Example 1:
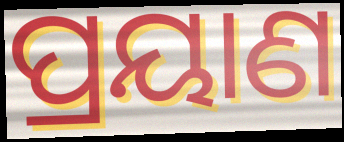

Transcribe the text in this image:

ପ୍ରୟାଣ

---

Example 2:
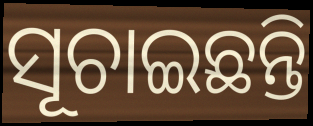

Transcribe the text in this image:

ସୂଚାଇଛନ୍ତି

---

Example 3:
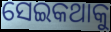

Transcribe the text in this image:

ସେଇକଥାକୁ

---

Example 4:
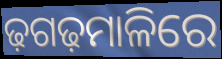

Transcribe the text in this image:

ଢ଼ଗଢ଼ମାଳିରେ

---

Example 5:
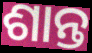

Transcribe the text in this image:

ଶାନ୍ତ